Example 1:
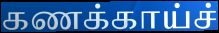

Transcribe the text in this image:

கணக்காய்ச்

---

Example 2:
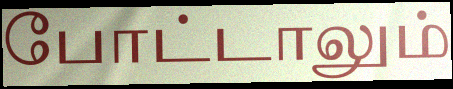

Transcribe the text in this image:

போட்டாலும்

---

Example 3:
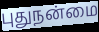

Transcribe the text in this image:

புதுநன்மை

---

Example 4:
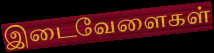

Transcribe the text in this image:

இடைவேளைகள்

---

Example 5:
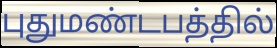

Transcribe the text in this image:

புதுமண்டபத்தில்